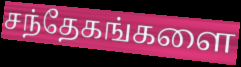
சந்தேகங்களை